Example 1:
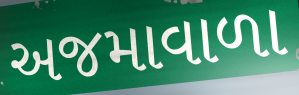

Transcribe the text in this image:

અજમાવાળા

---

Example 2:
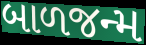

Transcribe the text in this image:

બાળજન્મ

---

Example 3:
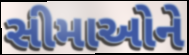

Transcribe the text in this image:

સીમાઓને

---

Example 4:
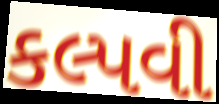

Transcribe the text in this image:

કલ્પવી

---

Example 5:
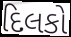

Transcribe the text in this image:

દિલકો